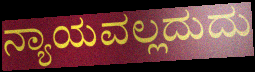
ನ್ಯಾಯವಲ್ಲದುದು